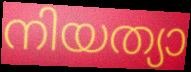
നിയത്യാ